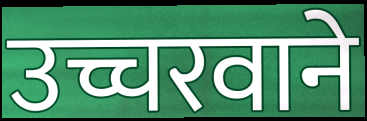
उच्चरवाने